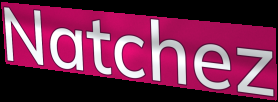
Natchez